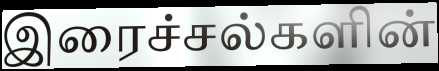
இரைச்சல்களின்